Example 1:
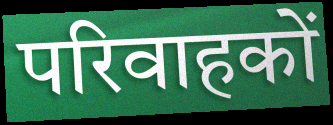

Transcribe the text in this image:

परिवाहकों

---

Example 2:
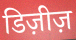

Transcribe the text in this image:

डिज़ीज़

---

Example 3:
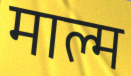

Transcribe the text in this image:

माल्म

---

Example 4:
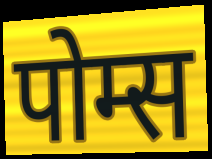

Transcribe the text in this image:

पोम्स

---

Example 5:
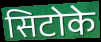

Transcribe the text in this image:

सिटोके